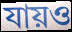
যায়ও